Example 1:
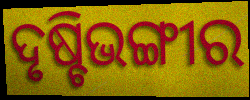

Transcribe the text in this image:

ଦୃଷ୍ଚିଭଙ୍ଗୀର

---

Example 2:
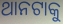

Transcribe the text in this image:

ଥାନଟାକୁ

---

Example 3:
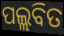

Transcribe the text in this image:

ପଲ୍ଲବିତ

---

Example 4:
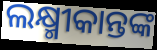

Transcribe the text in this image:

ଲକ୍ଷ୍ମୀକାନ୍ତଙ୍କ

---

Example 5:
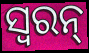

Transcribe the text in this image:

ସ୍ୱରନ୍